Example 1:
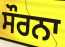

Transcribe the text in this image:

ਸੌਰਨਾ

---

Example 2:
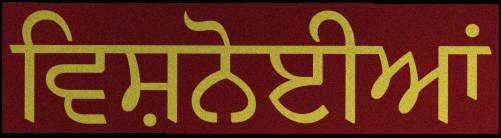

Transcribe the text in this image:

ਵਿਸ਼ਨੋਈਆਂ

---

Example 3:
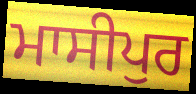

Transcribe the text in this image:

ਮਾਸੀਪੁਰ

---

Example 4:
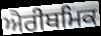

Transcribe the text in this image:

ਐਰੀਥਮਿਕ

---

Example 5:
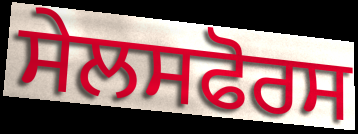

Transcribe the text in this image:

ਸੇਲਸਫੋਰਸ